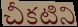
చీకటిని